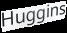
Huggins